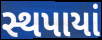
સ્થપાયાં